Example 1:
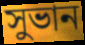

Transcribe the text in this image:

সুভান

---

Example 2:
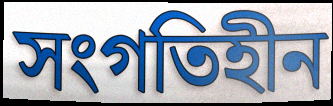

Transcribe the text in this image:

সংগতিহীন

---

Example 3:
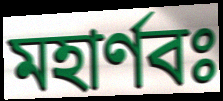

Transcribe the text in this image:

মহার্ণবঃ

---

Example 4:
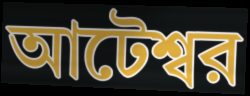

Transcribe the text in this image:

আটেশ্বর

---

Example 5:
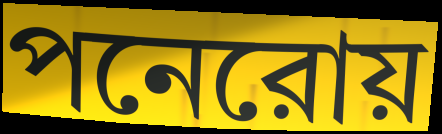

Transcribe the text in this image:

পনেরোয়